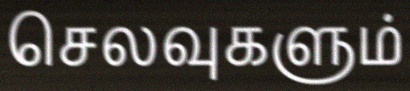
செலவுகளும்